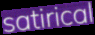
satirical